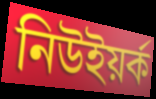
নিউইয়ৰ্ক